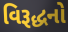
વિરૂદ્ધનો